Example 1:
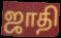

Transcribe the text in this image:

ஜாதி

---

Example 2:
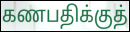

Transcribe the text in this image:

கணபதிக்குத்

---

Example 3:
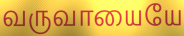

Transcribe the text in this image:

வருவாயையே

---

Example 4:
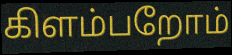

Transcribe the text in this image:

கிளம்பறோம்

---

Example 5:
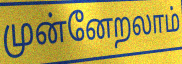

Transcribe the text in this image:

முன்னேறலாம்